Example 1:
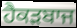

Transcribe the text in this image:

ਹੈਕੜਬਾਜ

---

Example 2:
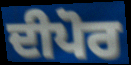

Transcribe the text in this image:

ਦੀਪੋਰ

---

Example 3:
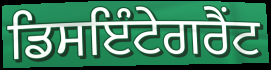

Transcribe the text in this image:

ਡਿਸਇੰਟੇਗਰੈਂਟ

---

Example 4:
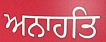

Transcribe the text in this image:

ਅਨਾਹਤਿ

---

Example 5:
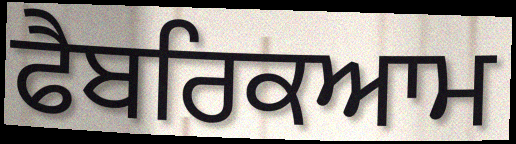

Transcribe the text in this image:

ਫੈਬਰਿਕਆਮ